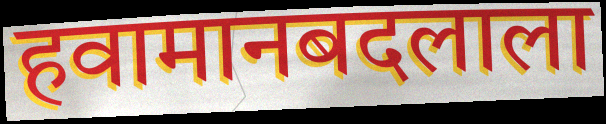
हवामानबदलाला